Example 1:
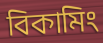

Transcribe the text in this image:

বিকামিং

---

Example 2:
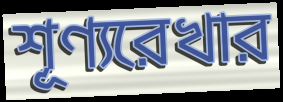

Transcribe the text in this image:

শূণ্যরেখার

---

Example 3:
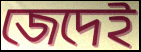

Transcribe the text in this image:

জেদেই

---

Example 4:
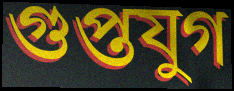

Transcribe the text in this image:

গুপ্তযুগ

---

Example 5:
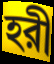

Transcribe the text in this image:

হরী